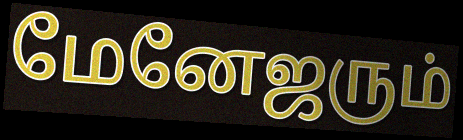
மேனேஜரும்